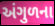
અંગુળના